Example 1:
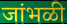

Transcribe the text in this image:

जांभळी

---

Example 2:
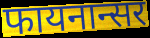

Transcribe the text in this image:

फायनान्सर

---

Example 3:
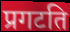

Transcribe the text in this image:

प्रगटति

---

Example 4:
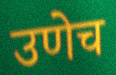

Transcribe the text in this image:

उणेच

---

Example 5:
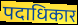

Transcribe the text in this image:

पदाधिकार